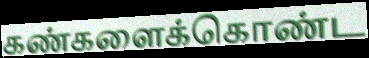
கண்களைக்கொண்ட